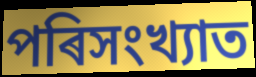
পৰিসংখ্যাত